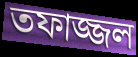
তফাজ্জল